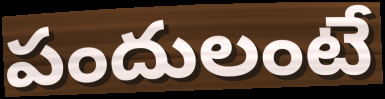
పందులంటే